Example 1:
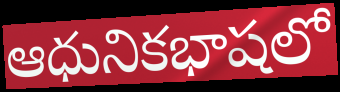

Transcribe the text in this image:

ఆధునికభాషలో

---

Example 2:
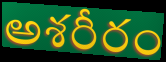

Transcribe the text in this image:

అశరీరం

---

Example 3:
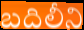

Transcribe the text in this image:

బదిలీని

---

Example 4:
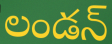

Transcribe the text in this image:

లండన్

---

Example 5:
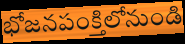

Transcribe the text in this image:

భోజనపంక్తిలోనుండి